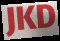
JKD